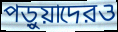
পড়ুয়াদেরও